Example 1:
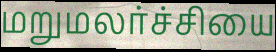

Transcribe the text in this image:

மறுமலர்ச்சியை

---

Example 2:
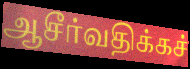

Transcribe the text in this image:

ஆசீர்வதிக்கச்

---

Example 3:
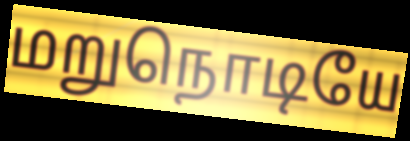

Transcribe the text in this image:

மறுநொடியே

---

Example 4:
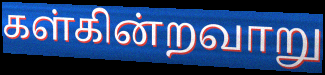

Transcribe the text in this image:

கள்கின்றவாறு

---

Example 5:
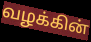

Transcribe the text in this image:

வழக்கின்